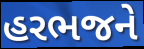
હરભજને